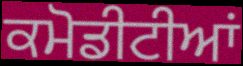
ਕਮੋਡੀਟੀਆਂ